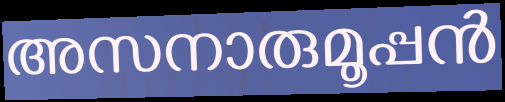
അസനാരുമൂപ്പൻ